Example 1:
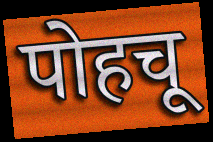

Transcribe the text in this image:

पोहचू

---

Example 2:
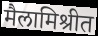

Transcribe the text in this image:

मैलामिश्रीत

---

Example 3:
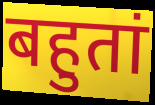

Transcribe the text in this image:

बहुतां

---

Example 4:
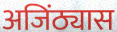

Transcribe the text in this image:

अजिंठ्यास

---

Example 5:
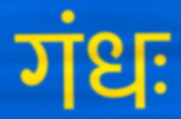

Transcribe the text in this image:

गंधः